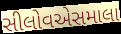
સીલોવએસમાલા